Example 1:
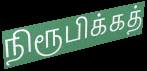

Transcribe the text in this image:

நிரூபிக்கத்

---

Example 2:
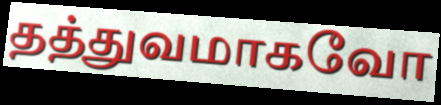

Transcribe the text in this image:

தத்துவமாகவோ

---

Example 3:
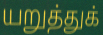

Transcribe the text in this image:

யறுத்துக்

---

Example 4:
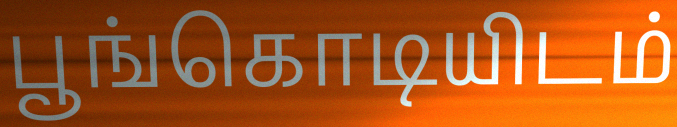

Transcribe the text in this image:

பூங்கொடியிடம்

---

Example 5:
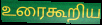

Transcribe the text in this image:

உரைகூறிய